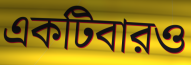
একটিবারও